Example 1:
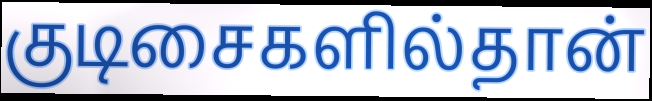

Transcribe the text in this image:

குடிசைகளில்தான்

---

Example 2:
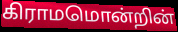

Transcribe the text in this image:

கிராமமொன்றின்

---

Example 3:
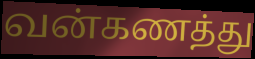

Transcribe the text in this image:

வன்கணத்து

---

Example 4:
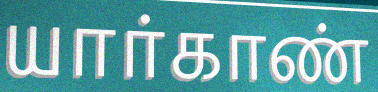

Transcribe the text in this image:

யார்காண்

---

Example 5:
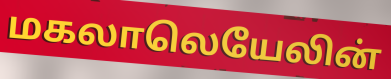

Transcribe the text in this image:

மகலாலெயேலின்